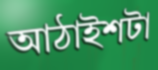
আঠাইশটা